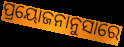
ପ୍ରୟୋଜନାନୁସାରେ